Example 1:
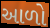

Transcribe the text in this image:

આળો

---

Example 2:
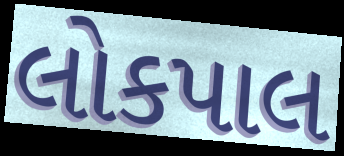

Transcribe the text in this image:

લોકપાલ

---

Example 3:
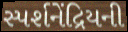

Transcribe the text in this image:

સ્પર્શનેંદ્રિયની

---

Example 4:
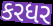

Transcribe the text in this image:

કરધર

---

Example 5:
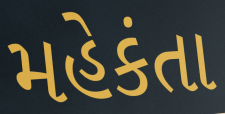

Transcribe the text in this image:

મહેકંતા